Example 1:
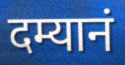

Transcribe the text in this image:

दम्यानं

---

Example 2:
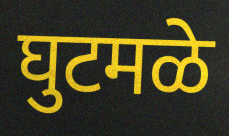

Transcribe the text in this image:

घुटमळे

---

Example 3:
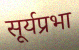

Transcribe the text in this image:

सूर्यप्रभा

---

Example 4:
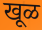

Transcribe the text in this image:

खूळ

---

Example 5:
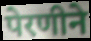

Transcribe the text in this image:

पेरणीने